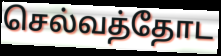
செல்வத்தோட